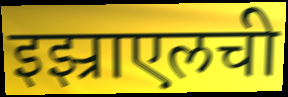
इझ्राएलची